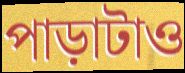
পাড়াটাও